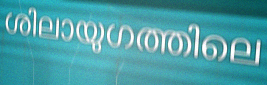
ശിലായുഗത്തിലെ